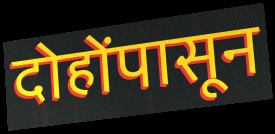
दोहोंपासून